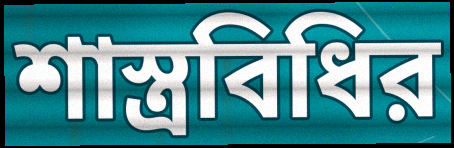
শাস্ত্রবিধির